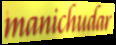
manichudar